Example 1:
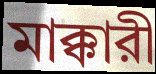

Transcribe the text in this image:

মাক্কারী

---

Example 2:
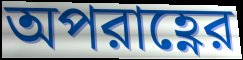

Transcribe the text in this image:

অপরাহ্ণের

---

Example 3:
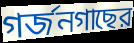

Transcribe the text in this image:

গর্জনগাছের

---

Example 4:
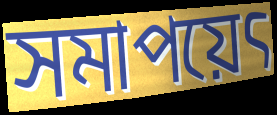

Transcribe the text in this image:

সমাপয়েৎ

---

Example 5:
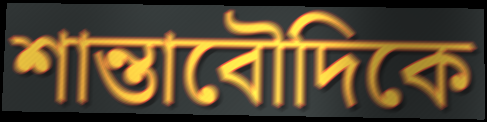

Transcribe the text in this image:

শান্তাবৌদিকে